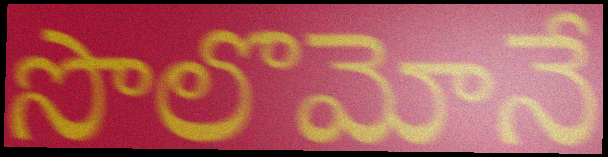
సొలొమోనే